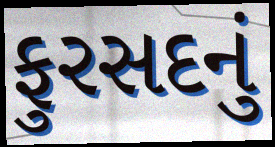
ફુરસદનું